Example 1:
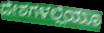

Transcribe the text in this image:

ದೇಶಗಳಲ್ಲಿಯೂ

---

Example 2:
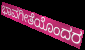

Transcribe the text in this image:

ಭಾವಗೀತೆಯೊಂದರ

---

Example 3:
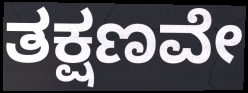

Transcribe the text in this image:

ತಕ್ಷಣವೇ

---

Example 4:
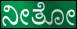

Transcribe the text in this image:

ನೀತೋ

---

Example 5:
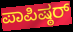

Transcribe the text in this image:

ಪಾಪಿಷ್ಠರ್